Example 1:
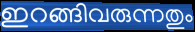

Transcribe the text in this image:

ഇറങ്ങിവരുന്നതും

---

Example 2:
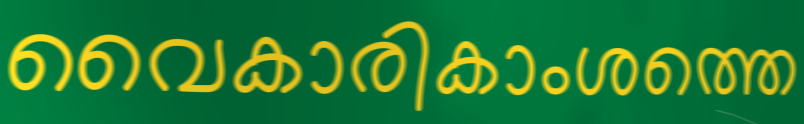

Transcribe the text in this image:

വൈകാരികാംശത്തെ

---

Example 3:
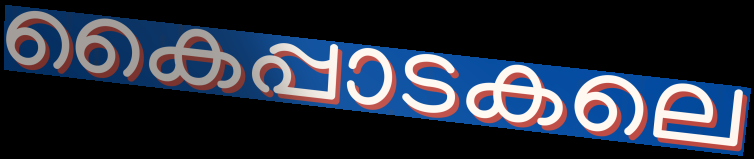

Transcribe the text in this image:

കൈപ്പാടകലെ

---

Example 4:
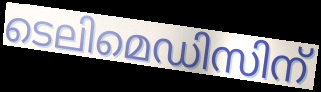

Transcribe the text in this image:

ടെലിമെഡിസിന്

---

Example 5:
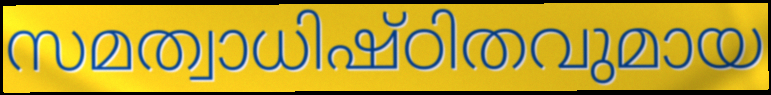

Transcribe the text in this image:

സമത്വാധിഷ്ഠിതവുമായ